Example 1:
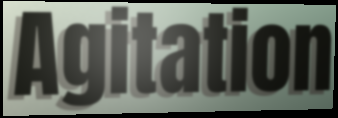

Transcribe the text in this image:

Agitation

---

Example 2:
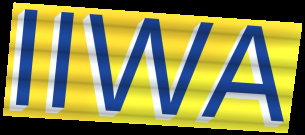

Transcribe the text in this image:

IIWA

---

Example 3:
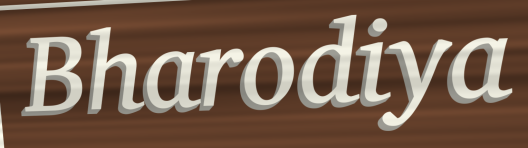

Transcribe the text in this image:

Bharodiya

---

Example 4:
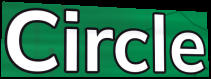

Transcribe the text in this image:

Circle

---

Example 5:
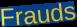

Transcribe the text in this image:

Frauds